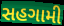
સહગામી